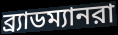
ব্র্যাডম্যানরা